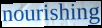
nourishing